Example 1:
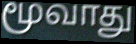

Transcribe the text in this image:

மூவாது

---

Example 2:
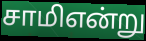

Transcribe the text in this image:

சாமிஎன்று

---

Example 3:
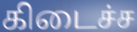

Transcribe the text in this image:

கிடைச்ச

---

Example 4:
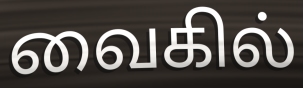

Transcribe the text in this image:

வைகில்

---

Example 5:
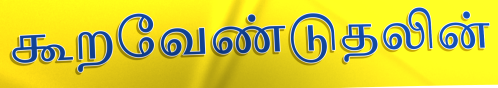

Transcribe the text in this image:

கூறவேண்டுதலின்